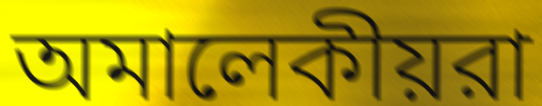
অমালেকীয়রা